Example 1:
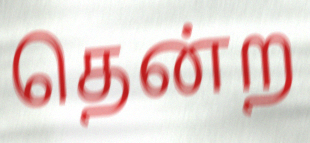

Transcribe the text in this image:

தென்ற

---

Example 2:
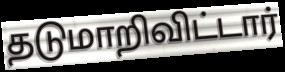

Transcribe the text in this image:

தடுமாறிவிட்டார்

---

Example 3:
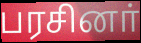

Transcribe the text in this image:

பரசினர்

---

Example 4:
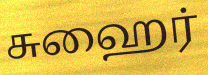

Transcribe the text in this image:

சுஹைர்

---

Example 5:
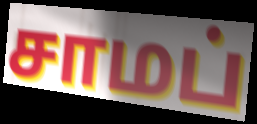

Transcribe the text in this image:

சாமப்